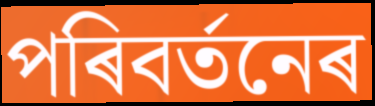
পৰিবৰ্তনেৰ